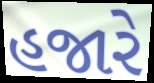
હજારે